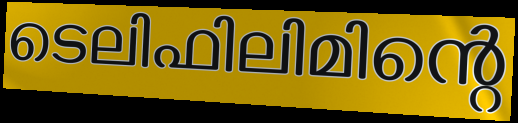
ടെലിഫിലിമിന്റെ